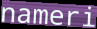
nameri